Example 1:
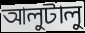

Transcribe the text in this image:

আলুটালু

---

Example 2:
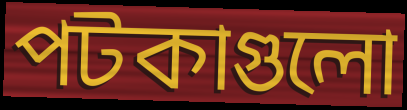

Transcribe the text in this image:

পটকাগুলো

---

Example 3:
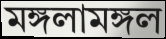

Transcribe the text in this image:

মঙ্গলামঙ্গল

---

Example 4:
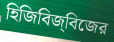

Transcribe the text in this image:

হিজিবিজ্‌বিজের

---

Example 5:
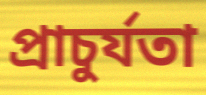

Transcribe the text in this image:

প্রাচুর্যতা